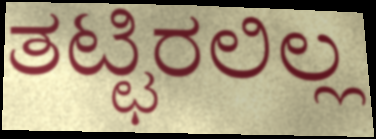
ತಟ್ಟಿರಲಿಲ್ಲ